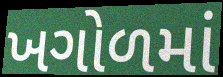
ખગોળમાં